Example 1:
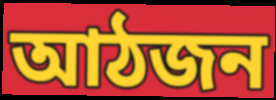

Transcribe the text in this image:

আঠজন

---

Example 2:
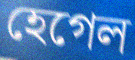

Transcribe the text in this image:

হেগেল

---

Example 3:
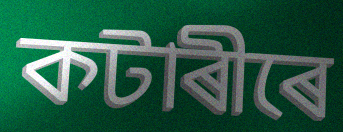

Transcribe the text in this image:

কটাৰীৰে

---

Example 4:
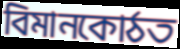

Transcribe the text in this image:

বিমানকোঠত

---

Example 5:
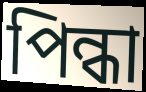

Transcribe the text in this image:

পিন্ধা